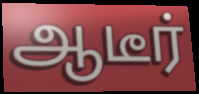
ஆடீர்